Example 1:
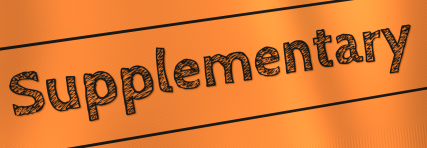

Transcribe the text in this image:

Supplementary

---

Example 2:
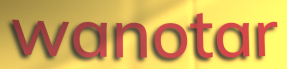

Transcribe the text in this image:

wanotar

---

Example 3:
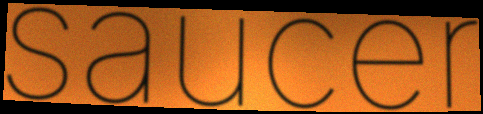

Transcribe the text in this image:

saucer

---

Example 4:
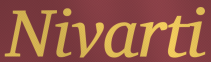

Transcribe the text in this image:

Nivarti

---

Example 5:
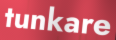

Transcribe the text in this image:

tunkare